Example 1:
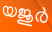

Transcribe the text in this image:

യജുർ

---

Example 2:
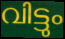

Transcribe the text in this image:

വിട്ടും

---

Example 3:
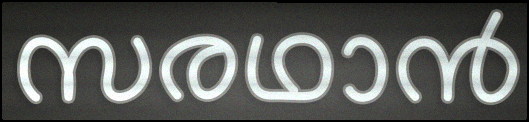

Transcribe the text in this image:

സരഥാൻ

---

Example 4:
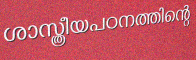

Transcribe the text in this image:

ശാസ്ത്രീയപഠനത്തിന്റെ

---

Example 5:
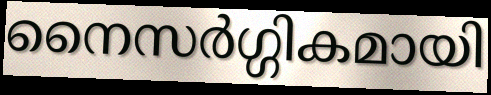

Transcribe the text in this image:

നൈസർഗ്ഗികമായി